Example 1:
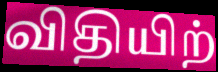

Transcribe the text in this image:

விதியிற்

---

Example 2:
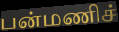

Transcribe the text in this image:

பன்மணிச்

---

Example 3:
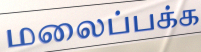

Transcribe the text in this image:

மலைப்பக்க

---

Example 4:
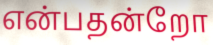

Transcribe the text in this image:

என்பதன்றோ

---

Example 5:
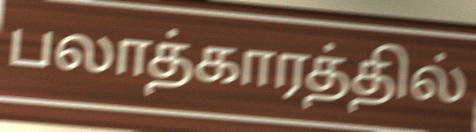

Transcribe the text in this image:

பலாத்காரத்தில்